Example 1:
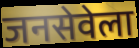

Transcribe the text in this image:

जनसेवेला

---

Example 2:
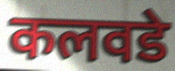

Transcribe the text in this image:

कलवडे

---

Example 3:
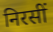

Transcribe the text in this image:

निरसीं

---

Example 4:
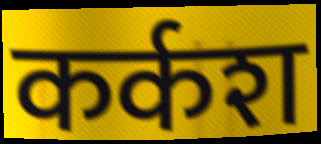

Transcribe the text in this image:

कर्कश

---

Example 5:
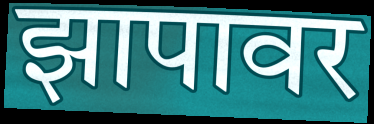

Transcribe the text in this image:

झापावर